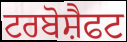
ਟਰਬੋਸ਼ੈਫਟ